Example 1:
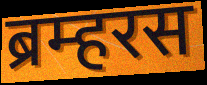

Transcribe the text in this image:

ब्रम्हरस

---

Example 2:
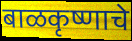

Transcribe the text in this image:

बाळकृष्णाचे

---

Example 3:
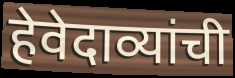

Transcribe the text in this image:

हेवेदाव्यांची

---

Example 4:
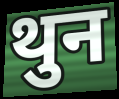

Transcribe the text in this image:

थुन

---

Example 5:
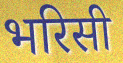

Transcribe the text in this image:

भरिसी